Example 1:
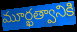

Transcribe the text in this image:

మూర్ఖత్వానికి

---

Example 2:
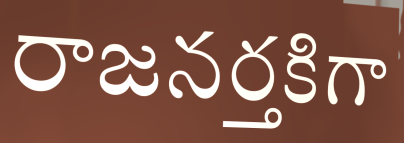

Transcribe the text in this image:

రాజనర్తకిగా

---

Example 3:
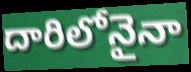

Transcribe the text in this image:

దారిలోనైనా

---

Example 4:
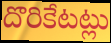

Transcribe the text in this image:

దొరికేటట్లు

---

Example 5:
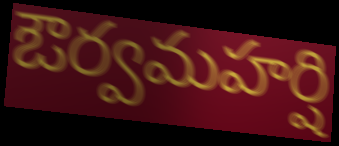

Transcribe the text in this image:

ఔర్వమహర్షి